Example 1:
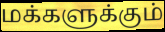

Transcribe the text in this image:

மக்களுக்கும்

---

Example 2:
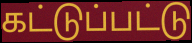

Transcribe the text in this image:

கட்டுப்பட்டு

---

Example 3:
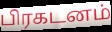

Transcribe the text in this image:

பிரகடனம்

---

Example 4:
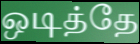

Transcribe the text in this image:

ஒடித்தே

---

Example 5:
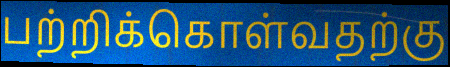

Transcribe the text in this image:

பற்றிக்கொள்வதற்கு